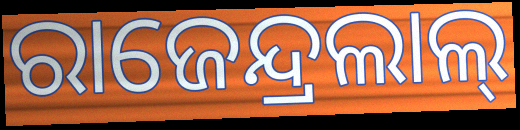
ରାଜେନ୍ଦ୍ରଲାଲ୍